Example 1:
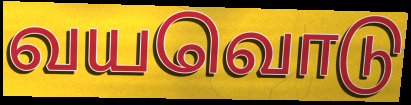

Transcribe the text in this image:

வயவொடு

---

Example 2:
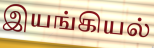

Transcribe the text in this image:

இயங்கியல்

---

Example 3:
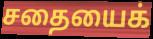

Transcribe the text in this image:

சதையைக்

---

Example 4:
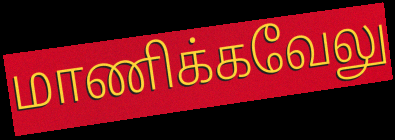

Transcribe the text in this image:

மாணிக்கவேலு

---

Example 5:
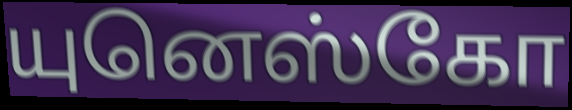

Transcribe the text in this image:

யுனெஸ்கோ